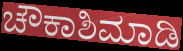
ಚೌಕಾಶಿಮಾಡಿ